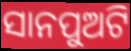
ସାନପୁଅଟି